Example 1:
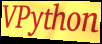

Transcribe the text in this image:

VPython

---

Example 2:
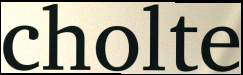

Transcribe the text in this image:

cholte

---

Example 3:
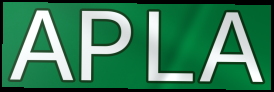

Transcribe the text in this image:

APLA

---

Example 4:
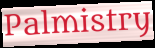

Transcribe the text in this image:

Palmistry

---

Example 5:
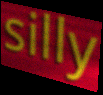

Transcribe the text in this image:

silly